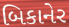
બિકાનેર